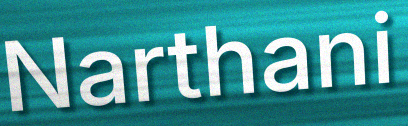
Narthani